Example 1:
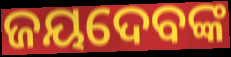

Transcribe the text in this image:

ଜୟଦେବଙ୍କ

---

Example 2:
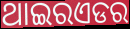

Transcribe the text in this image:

ଥାଇରଏଡର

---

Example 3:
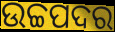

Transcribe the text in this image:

ଉଚ୍ଚପଦର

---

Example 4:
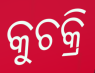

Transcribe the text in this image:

କୁଚକ୍ରି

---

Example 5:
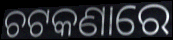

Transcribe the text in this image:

ଚଟକଣାରେ